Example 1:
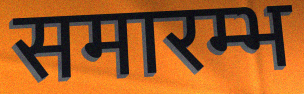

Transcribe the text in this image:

समारम्भ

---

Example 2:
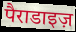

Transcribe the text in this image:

पैराडाइज़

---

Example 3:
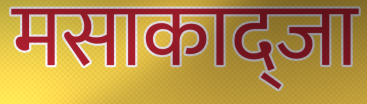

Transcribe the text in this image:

मसाकाद्जा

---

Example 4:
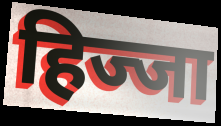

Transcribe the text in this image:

हिज्जा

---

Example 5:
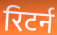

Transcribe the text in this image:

रिटर्न